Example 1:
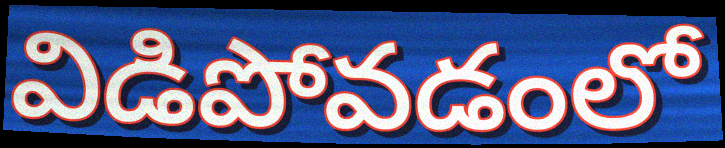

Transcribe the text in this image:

విడిపోవడంలో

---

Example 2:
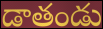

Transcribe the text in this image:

డాతండు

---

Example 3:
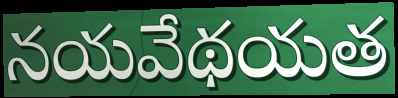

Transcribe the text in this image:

నయవేథయత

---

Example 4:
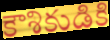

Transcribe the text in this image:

కౌశికుడికి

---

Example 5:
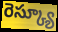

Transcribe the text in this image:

రెస్క్యూ